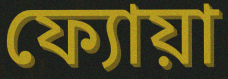
ফ্যোয়া